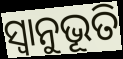
ସ୍ଵାନୁଭୂତି